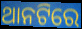
ଥାନଟିରେ